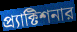
প্র্যাক্টিশনার